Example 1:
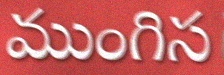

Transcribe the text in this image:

ముంగిస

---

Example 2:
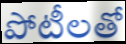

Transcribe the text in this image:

పోటీలతో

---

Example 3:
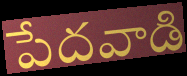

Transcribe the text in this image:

పేదవాడి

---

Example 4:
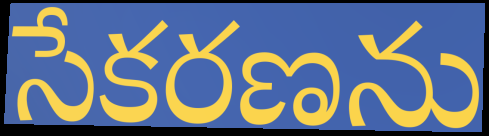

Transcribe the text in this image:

సేకరణను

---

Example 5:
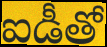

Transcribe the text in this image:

ఐడీతో